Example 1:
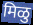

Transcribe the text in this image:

मिळु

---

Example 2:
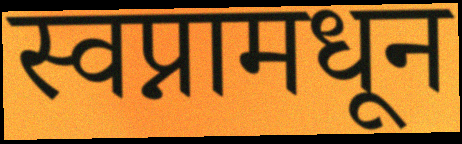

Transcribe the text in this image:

स्वप्नामधून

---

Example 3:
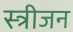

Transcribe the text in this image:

स्त्रीजन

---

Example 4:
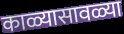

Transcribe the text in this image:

काळ्यासावळ्या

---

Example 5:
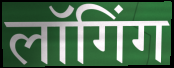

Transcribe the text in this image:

लॉगिंग